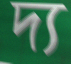
দ্য